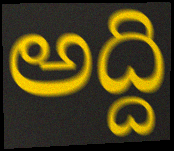
అద్ది